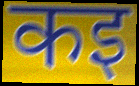
कइ